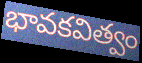
భావకవిత్వం